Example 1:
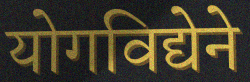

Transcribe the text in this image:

योगविद्येने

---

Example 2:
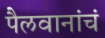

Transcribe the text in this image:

पैलवानांचं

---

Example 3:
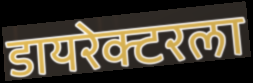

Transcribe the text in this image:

डायरेक्टरला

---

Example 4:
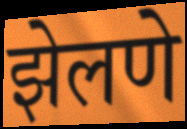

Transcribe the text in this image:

झेलणे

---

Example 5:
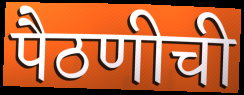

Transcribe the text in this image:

पैठणीची